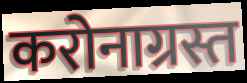
करोनाग्रस्त